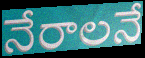
నేరాలనే